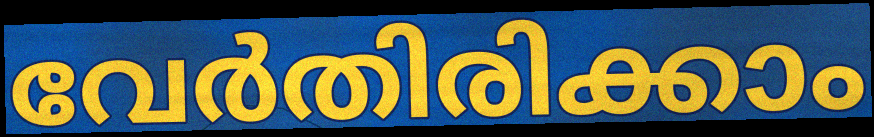
വേർതിരിക്കാം